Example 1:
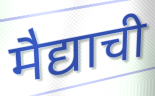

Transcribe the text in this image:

मैद्याची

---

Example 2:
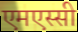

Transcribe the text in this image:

एमएस्सी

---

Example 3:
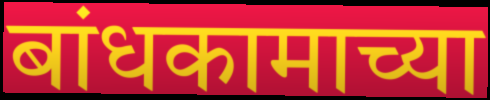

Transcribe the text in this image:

बांधकामाच्या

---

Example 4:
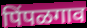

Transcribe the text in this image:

पिंपळगाव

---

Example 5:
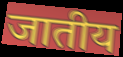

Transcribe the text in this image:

जातीय